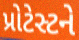
પ્રોટેસ્ટને